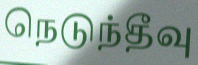
நெடுந்தீவு